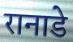
रानाडे